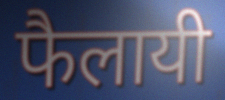
फैलायी